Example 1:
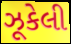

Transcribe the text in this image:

ઝૂકેલી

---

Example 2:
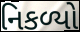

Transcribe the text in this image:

નિકળ્યો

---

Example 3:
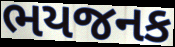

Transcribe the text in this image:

ભયજનક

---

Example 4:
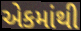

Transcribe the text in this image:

એકમાંથી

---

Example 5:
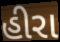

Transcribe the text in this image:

હીરા